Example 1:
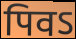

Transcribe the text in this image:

पिवऽ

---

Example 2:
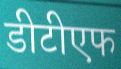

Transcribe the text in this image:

डीटीएफ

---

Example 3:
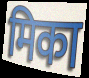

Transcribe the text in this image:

मिका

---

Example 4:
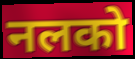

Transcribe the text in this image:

नलको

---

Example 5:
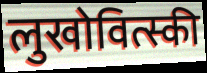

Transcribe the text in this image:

लुखोवित्स्की